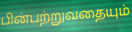
பின்பற்றுவதையும்